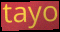
tayo